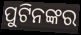
ପୁଟିନଙ୍କର